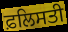
ਫ਼ਲਿਸਤੀ